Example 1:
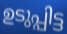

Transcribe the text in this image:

ഉടുപ്പിട്ട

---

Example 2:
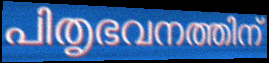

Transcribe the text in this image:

പിതൃഭവനത്തിന്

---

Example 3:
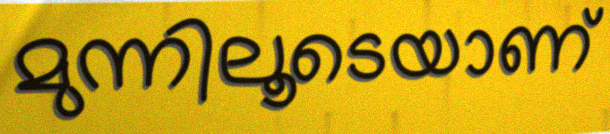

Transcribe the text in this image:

മുന്നിലൂടെയാണ്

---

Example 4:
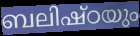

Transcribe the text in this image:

ബലിഷ്ഠയും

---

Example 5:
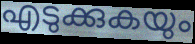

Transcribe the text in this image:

എടുക്കുകയും